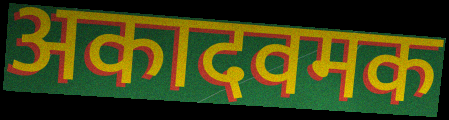
अकादवमक